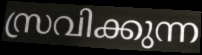
സ്രവിക്കുന്ന